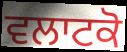
ਵਲਾਟਕੋ